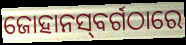
ଜୋହାନସ୍‌ବର୍ଗଠାରେ